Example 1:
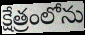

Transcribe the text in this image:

క్షేత్రంలోను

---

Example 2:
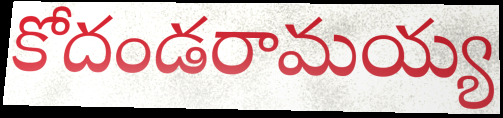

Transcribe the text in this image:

కోదండరామయ్య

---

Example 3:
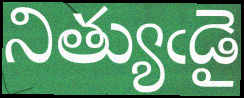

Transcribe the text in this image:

నిత్యుఁడై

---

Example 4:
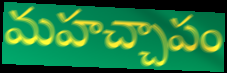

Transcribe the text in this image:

మహచ్చాపం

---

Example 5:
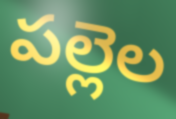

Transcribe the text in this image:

పల్లెల